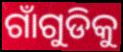
ଗାଁଗୁଡିକୁ